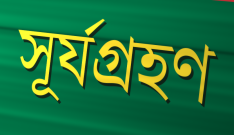
সূর্যগ্রহণ